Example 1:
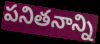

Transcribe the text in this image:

పనితనాన్ని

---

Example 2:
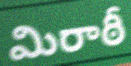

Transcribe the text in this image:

మిరాఠీ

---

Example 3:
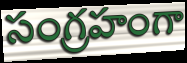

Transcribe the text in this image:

సంగ్రహంగా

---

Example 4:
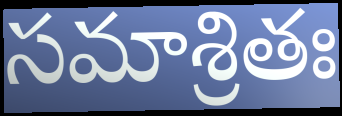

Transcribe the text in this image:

సమాశ్రితః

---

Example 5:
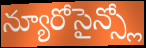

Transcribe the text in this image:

న్యూరోసైన్స్లో